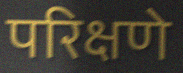
परिक्षणे